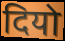
दियो